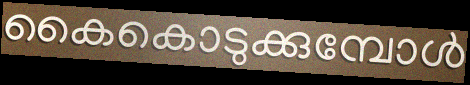
കൈകൊടുക്കുമ്പോൾ